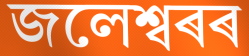
জলেশ্বৰৰ